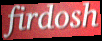
firdosh